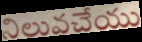
నిలువచేయు